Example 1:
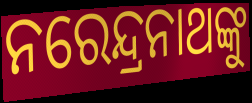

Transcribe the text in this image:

ନରେନ୍ଦ୍ରନାଥଙ୍କୁ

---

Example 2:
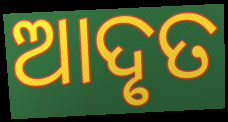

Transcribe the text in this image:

ଆଦୃତ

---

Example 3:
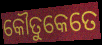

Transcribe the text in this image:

କୌତୁକେତେ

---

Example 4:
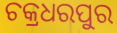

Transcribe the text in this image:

ଚକ୍ରଧରପୁର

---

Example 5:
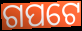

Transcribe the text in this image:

ଗପଟେ